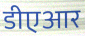
डीएआर